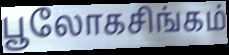
பூலோகசிங்கம்